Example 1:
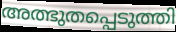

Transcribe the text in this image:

അത്ഭുതപ്പെടുത്തി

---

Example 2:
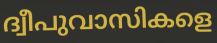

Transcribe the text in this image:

ദ്വീപുവാസികളെ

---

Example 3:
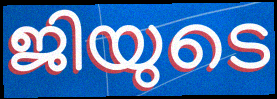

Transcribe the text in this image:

ജിയുടെ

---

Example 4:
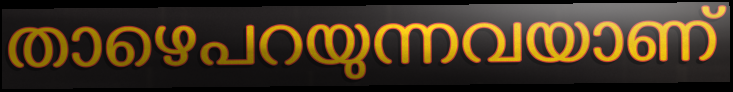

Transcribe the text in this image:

താഴെപറയുന്നവയാണ്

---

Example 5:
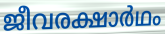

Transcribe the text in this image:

ജീവരക്ഷാർഥം